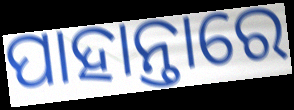
ପାହାନ୍ତାରେ